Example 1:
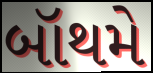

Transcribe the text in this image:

બૉથમે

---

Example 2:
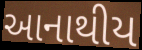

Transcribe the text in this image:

આનાથીય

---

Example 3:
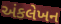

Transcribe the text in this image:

અંકલેખન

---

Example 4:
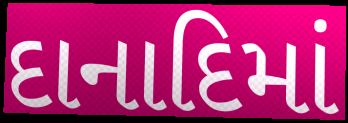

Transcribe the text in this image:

દાનાદિમાં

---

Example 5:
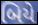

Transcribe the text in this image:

બિયે